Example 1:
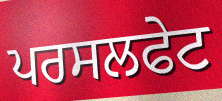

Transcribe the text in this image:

ਪਰਸਲਫੇਟ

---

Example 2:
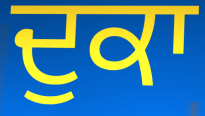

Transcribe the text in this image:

ਦੁਕਾ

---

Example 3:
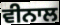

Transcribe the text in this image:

ਵੀਨਾਲ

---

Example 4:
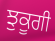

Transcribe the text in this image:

ਝੁਕੂਗੀ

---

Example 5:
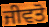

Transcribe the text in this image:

ਜੀਵਤੋ